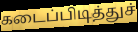
கடைப்பிடித்துச்